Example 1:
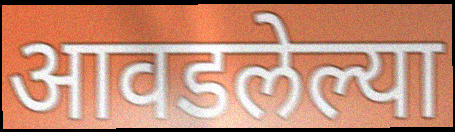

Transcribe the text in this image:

आवडलेल्या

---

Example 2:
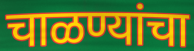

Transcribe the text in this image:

चाळण्यांचा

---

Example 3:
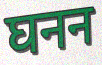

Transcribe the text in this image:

घनन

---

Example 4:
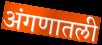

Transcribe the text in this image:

अंगणातली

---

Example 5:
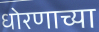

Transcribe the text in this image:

धोरणाच्या